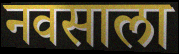
नवसाला